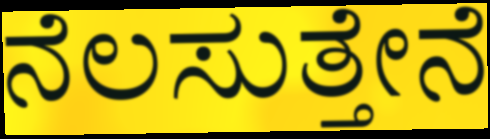
ನೆಲಸುತ್ತೇನೆ